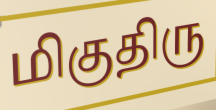
மிகுதிரு